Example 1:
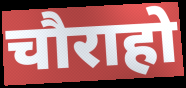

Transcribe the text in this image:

चौराहो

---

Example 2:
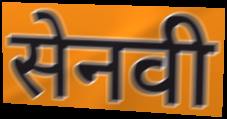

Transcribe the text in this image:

सेनवी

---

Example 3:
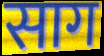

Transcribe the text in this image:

साग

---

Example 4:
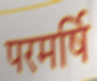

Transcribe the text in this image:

परमर्षि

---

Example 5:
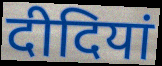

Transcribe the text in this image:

दीदियां